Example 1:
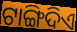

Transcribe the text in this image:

ଟାଙ୍ଗିଦିଏ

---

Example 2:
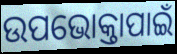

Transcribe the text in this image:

ଉପଭୋକ୍ତାପାଇଁ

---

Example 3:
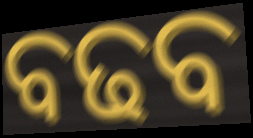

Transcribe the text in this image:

ବଢବ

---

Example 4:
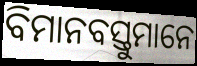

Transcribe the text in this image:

ବିମାନବସ୍ତୁମାନେ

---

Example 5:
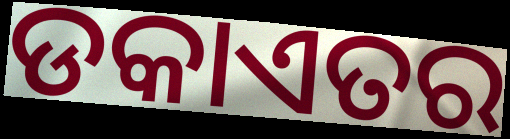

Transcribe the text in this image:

ଡକାଏତର